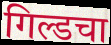
गिल्डचा